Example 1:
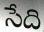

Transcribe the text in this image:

సేది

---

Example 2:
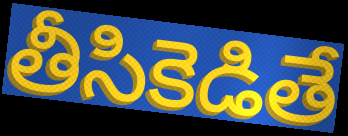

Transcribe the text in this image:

తీసికెడితే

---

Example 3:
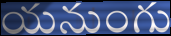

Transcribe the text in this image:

యనుంగు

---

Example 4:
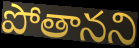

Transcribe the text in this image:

పోతానని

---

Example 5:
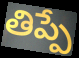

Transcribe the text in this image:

తిప్పే